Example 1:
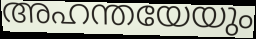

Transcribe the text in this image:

അഹന്തയേയും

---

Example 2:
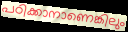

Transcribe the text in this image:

പഠിക്കാനാണെങ്കിലും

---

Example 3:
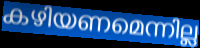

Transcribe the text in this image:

കഴിയണമെന്നില്ല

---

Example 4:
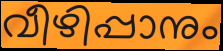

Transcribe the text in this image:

വീഴിപ്പാനും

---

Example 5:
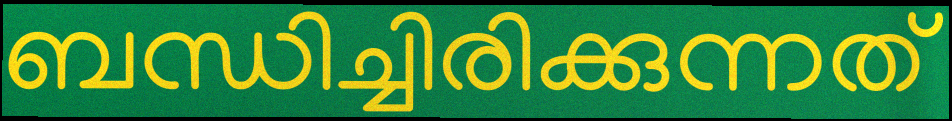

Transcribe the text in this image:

ബന്ധിച്ചിരിക്കുന്നത്